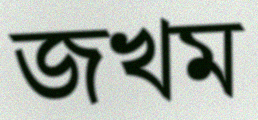
জখম